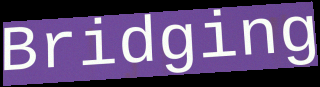
Bridging